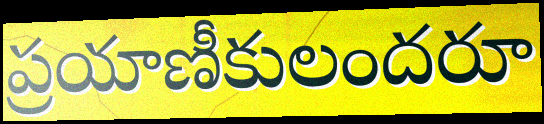
ప్రయాణీకులందరూ